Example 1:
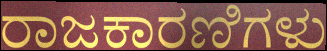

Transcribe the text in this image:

ರಾಜಕಾರಣಿಗಳು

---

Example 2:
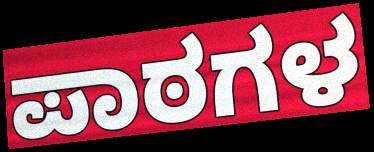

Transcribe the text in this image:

ಪಾಠಗಳ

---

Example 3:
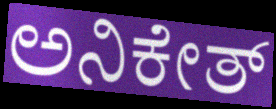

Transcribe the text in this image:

ಅನಿಕೇತ್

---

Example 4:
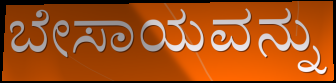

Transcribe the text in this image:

ಬೇಸಾಯವನ್ನು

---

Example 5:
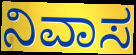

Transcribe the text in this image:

ನಿವಾಸ